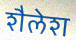
शैलेश